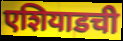
एशियाडची